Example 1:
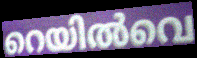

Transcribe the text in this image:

റെയിൽവെ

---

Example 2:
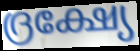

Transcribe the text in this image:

ദ്രക്ഷ്യേ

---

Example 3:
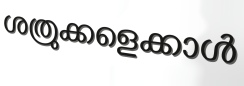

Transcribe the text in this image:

ശത്രുക്കളെക്കാൾ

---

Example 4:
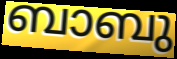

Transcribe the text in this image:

ബാബു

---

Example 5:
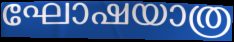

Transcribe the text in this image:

ഘോഷയാത്ര